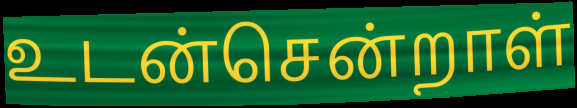
உடன்சென்றாள்